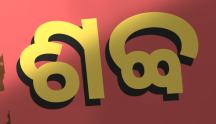
ଶବ୍ବ